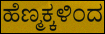
ಹೆಣ್ಮಕ್ಕಳಿಂದ